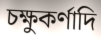
চক্ষুকর্ণাদি